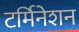
टर्मिनेशन